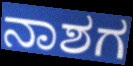
ನಾಶಗ